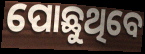
ପୋଛୁଥିବେ